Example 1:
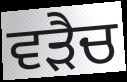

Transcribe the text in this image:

ਵੜੈਚ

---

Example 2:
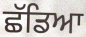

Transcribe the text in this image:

ਛੱਡਿਆ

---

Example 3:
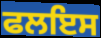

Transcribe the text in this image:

ਫਲਇਸ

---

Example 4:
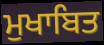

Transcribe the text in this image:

ਮੁਖਾਬਿਤ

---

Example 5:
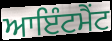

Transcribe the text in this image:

ਆਇੰਟਮੈਂਟ